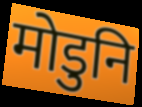
मोडुनि